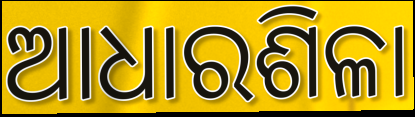
ଆଧାରଶିଳା